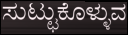
ಸುಟ್ಟುಕೊಳ್ಳುವ